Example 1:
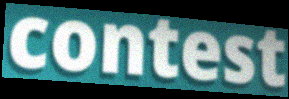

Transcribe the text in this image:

contest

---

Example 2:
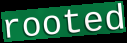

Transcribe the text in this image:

rooted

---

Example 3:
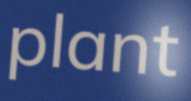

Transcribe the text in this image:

plant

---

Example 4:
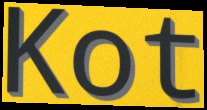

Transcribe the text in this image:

Kot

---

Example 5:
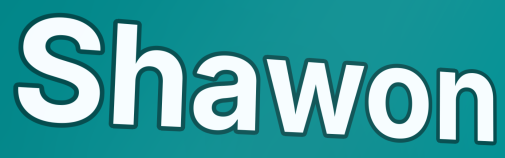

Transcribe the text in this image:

Shawon